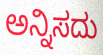
ಅನ್ನಿಸದು